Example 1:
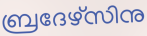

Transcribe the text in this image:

ബ്രദേഴ്സിനു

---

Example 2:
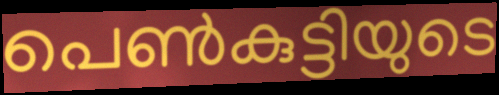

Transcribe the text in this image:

പെൺകുട്ടിയുടെ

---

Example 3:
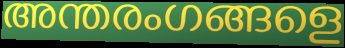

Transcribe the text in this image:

അന്തരംഗങ്ങളെ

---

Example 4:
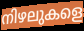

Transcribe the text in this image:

നിഴലുകളെ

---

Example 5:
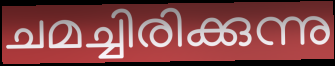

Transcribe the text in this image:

ചമച്ചിരിക്കുന്നു